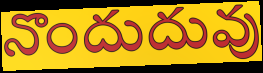
నొందుదువు